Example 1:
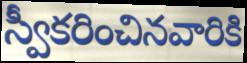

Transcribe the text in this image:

స్వీకరించినవారికి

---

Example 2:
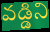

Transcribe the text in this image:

వడ్డిని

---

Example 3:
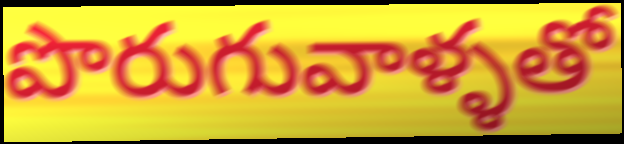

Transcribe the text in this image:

పొరుగువాళ్ళతో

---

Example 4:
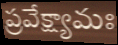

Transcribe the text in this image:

ప్రవేక్ష్యామః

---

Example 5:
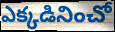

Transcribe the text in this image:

ఎక్కడినించో